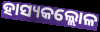
ହାସ୍ୟକଲ୍ଲୋଳ